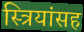
स्त्रियांसह